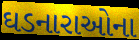
ઘડનારાઓના